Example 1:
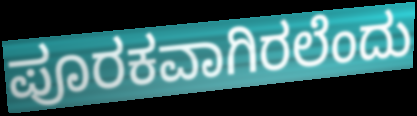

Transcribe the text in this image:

ಪೂರಕವಾಗಿರಲೆಂದು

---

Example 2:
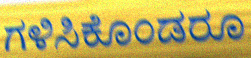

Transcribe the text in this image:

ಗಳಿಸಿಕೊಂಡರೂ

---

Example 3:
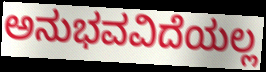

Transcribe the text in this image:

ಅನುಭವವಿದೆಯಲ್ಲ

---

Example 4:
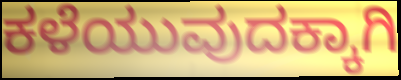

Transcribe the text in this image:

ಕಳೆಯುವುದಕ್ಕಾಗಿ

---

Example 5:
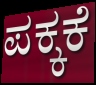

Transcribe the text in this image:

ಪಕ್ಕಕೆ